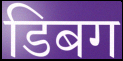
डिबग